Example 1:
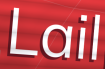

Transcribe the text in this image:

Lail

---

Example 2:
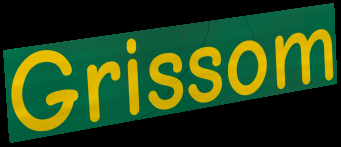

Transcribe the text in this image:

Grissom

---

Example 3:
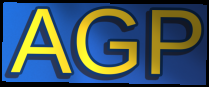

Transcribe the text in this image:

AGP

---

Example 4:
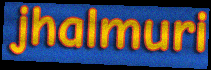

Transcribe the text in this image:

jhalmuri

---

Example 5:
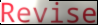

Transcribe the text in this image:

Revise